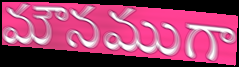
మౌనముగా